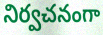
నిర్వచనంగా